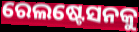
ରେଲଷ୍ଟେସନକୁ